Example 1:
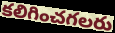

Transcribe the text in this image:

కలిగించగలరు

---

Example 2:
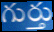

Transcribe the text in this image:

గుర్తు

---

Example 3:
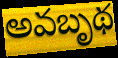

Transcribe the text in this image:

అవబృథ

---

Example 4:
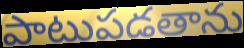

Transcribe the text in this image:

పాటుపడతాను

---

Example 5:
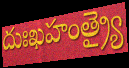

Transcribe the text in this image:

దుఃఖహంత్ర్యై